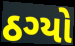
ઠગ્યો